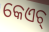
କେଏଚ୍